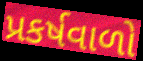
પ્રકર્ષવાળો